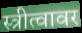
स्त्रीत्वावर